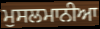
ਮੁਸਲਮਾਨੀਆ